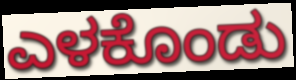
ಎಳಕೊಂಡು